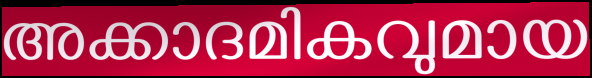
അക്കാദമികവുമായ